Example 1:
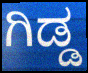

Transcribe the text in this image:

ಗಿಡ್ಡ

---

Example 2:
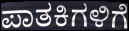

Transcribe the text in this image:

ಪಾತಕಿಗಳಿಗೆ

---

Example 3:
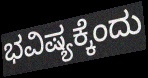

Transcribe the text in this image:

ಭವಿಷ್ಯಕ್ಕೆಂದು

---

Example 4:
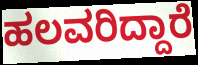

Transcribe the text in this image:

ಹಲವರಿದ್ದಾರೆ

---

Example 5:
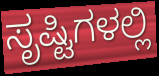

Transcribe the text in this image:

ಸೃಷ್ಟಿಗಳಲ್ಲಿ